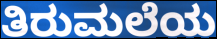
ತಿರುಮಲೆಯ